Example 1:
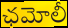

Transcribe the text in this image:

ఛమోలీ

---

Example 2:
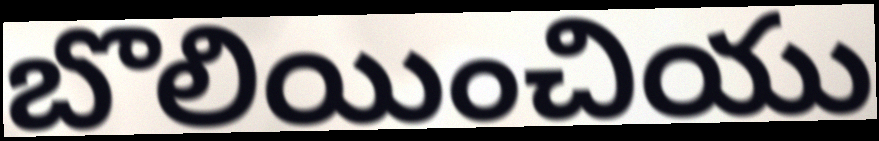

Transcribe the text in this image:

బొలియించియు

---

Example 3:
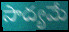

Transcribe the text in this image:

సాద్యమే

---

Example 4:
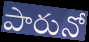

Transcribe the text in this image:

పారునో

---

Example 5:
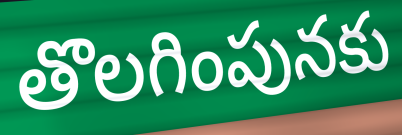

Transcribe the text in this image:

తొలగింపునకు